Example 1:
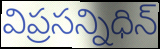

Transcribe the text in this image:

విప్రసన్నిధిన్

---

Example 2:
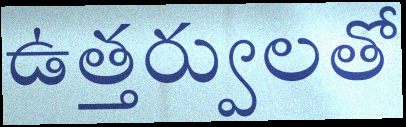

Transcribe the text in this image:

ఉత్తర్వులతో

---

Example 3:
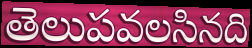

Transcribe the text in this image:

తెలుపవలసినది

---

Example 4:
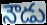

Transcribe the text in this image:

నౌడు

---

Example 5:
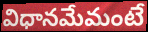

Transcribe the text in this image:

విధానమేమంటే